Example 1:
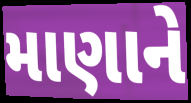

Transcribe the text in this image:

માણાને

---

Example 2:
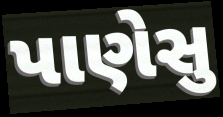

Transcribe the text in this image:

પાણેસુ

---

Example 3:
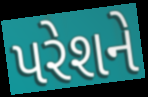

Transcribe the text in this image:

પરેશને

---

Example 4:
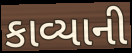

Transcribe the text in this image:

કાવ્યાની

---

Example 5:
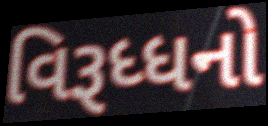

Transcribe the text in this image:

વિરૂધ્ધનો